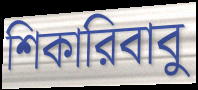
শিকারিবাবু